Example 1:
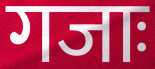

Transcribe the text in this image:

गजाः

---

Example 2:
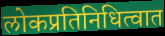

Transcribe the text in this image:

लोकप्रतिनिधित्वात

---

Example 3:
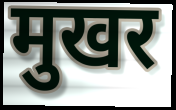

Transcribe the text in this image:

मुखर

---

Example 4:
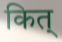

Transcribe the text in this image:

कित्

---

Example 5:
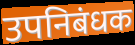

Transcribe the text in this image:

उपनिबंधक